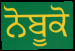
ਨੋਬੂਕੋ